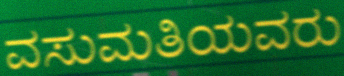
ವಸುಮತಿಯವರು